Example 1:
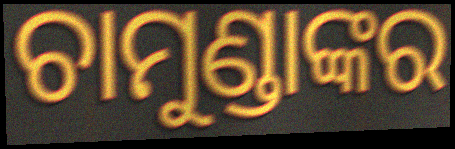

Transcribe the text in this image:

ଚାମୁଣ୍ଡାଙ୍କର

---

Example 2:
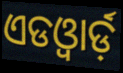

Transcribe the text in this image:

ଏଡଓ୍ବାର୍ଡ଼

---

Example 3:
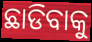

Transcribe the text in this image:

ଛାଡିବାକୁ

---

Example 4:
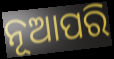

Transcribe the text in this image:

ନୂଆପରି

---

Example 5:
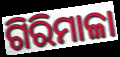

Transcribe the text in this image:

ଗିରିମାଳା